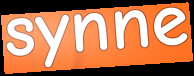
synne